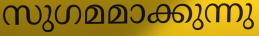
സുഗമമാക്കുന്നു